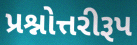
પ્રશ્નોત્તરીરૂપ